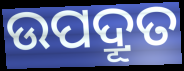
ଉପଦ୍ରୂତ